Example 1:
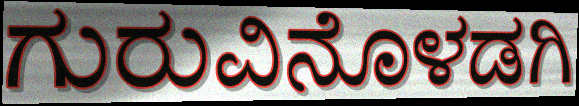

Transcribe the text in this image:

ಗುರುವಿನೊಳಡಗಿ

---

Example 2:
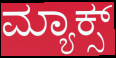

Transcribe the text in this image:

ಮ್ಯಾಕ್ಸ್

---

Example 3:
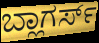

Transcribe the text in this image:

ಬ್ಲಾಗರ್ಸ್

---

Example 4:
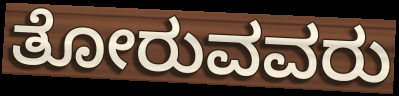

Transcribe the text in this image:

ತೋರುವವರು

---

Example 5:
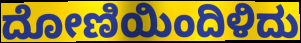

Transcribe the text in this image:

ದೋಣಿಯಿಂದಿಳಿದು